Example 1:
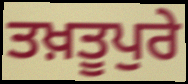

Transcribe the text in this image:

ਤਖ਼ਤੂਪੁਰੇ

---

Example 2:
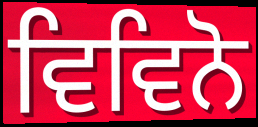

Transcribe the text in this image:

ਵਿਵਿਨੋ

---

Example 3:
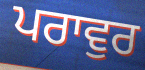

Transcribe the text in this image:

ਪਰਾਵੁਰ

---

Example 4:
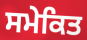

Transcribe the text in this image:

ਸਮੇਕਿਤ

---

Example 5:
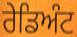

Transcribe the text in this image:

ਰੇਡਿਅੰਟ